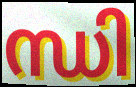
ന്ധി